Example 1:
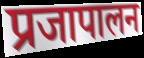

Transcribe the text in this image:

प्रजापालन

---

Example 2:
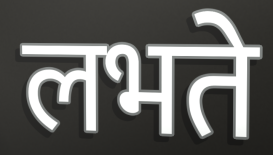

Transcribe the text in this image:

लभते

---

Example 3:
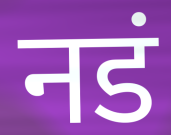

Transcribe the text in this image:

नडं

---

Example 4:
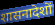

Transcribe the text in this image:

शासनादेशों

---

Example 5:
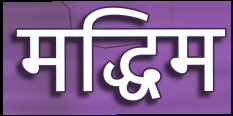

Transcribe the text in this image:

मद्धिम